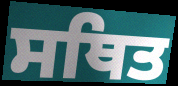
ਸਥਿਤ